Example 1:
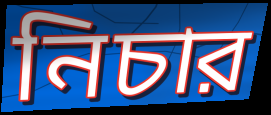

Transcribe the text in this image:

নিচার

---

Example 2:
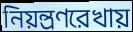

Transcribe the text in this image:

নিয়ন্ত্রণরেখায়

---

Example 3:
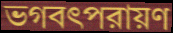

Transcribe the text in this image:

ভগবৎপরায়ণ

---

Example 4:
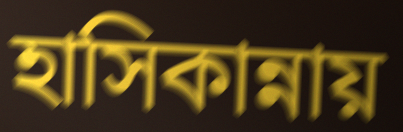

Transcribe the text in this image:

হাসিকান্নায়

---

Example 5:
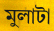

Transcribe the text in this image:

মুলাটা